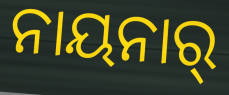
ନାୟନାର୍